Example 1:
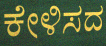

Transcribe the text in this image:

ಕೇಳಿಸದ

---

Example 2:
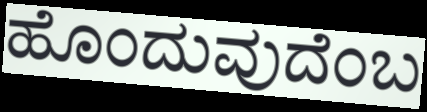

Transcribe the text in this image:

ಹೊಂದುವುದೆಂಬ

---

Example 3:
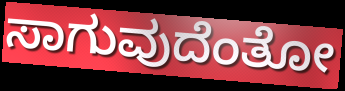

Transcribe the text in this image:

ಸಾಗುವುದೆಂತೋ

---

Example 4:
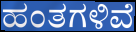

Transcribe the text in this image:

ಹಂತಗಳಿವೆ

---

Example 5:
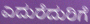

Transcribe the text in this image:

ಎದುರೆದುರಿಗೆ